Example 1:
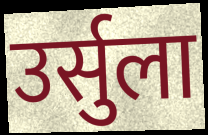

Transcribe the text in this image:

उर्सुला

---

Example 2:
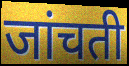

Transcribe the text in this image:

जांचती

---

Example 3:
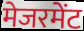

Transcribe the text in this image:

मेजरमेंट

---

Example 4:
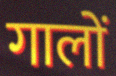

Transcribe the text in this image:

गालों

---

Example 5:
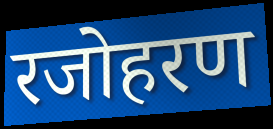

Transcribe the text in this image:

रजोहरण